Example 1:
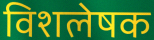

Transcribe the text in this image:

विशलेषक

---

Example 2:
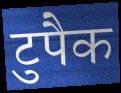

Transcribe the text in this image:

टुपैक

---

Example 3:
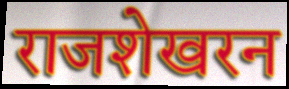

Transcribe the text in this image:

राजशेखरन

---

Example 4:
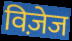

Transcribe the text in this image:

विज़ेज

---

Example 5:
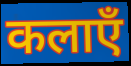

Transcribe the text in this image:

कलाएँ